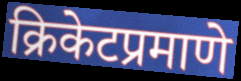
क्रिकेटप्रमाणे